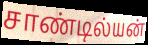
சாண்டில்யன்